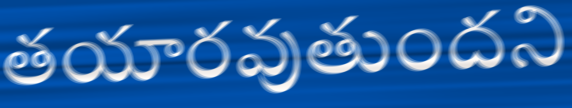
తయారవుతుందని